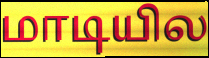
மாடியில